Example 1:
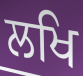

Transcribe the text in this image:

ਲਖਿ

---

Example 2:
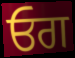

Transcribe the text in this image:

ਓਗ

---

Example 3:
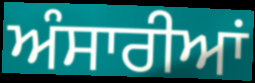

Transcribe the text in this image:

ਅੰਸਾਰੀਆਂ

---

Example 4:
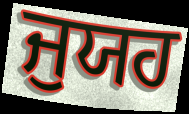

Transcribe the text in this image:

ਜੁਯਹ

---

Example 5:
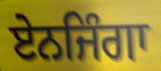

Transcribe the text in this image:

ਏਨਜਿੰਗਾ